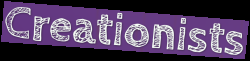
Creationists